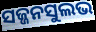
ସଜ୍ଜନସୁଲଭ